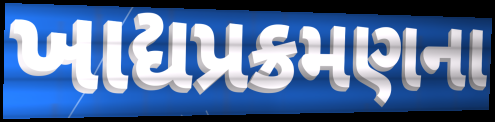
ખાદ્યપ્રક્રમણના